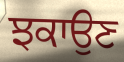
ਝਕਾਉਣ